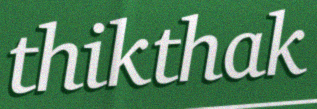
thikthak